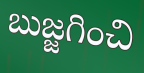
బుజ్జగించి